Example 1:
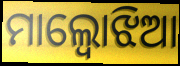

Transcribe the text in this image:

ମାଲ୍ବୋଝିଆ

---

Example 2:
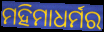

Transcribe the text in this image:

ମହିମାଧର୍ମର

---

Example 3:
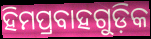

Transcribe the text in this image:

ହିମପ୍ରବାହଗୁଡ଼ିକ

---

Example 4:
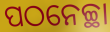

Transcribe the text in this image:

ପଠନେଚ୍ଛା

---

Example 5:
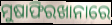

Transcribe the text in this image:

ମୁଷାଫିରଖାନାରେ